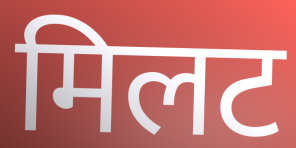
मिलट